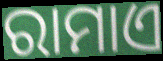
ରାମାଏ